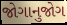
જોગાનુજોગ